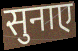
सुनाए